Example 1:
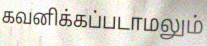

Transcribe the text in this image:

கவனிக்கப்படாமலும்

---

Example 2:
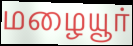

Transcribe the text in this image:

மழையூர்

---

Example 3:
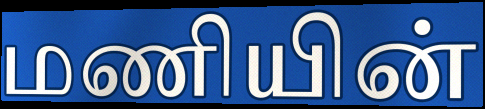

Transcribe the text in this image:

மணியின்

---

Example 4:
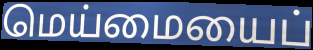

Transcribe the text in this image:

மெய்மையைப்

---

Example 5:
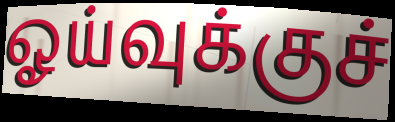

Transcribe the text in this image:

ஓய்வுக்குச்